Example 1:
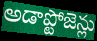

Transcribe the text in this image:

అడాప్టోజెన్లు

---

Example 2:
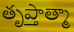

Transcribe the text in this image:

తృప్తాత్మా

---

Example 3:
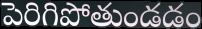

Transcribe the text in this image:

పెరిగిపోతుండడం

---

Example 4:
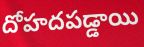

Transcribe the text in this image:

దోహదపడ్డాయి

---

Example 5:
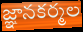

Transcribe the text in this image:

జ్ఞానకర్మల